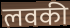
लवकी